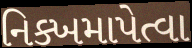
નિક્ખમાપેત્વા